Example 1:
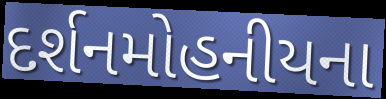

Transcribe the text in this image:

દર્શનમોહનીયના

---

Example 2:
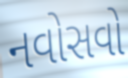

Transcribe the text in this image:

નવોસવો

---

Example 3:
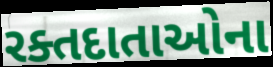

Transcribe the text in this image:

રક્તદાતાઓના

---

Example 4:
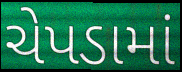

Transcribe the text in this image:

ચેપડામાં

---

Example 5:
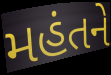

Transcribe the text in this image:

મહંતને